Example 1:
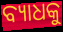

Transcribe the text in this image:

ବ୍ୟାଧକୁ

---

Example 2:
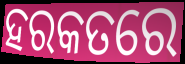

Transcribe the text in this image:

ହରକତରେ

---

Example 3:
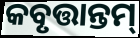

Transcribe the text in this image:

କବୃତ୍ତାନ୍ତମ୍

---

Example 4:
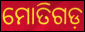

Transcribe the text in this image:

ମୋତିଗଡ଼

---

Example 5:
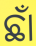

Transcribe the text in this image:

ଛାଁ